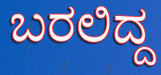
ಬರಲಿದ್ದ